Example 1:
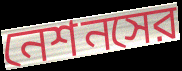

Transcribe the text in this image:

নেশনসের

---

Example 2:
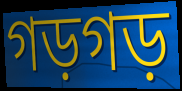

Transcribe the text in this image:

গড়গড়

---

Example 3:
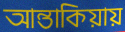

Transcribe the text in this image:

আন্তাকিয়ায়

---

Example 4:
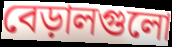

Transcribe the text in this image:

বেড়ালগুলো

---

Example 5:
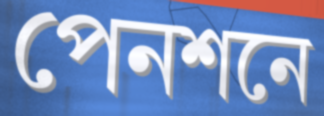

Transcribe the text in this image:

পেনশনে